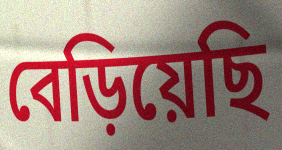
বেড়িয়েছি